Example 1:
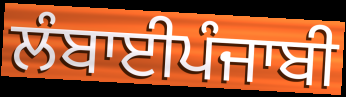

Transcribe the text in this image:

ਲੰਬਾਈਪੰਜਾਬੀ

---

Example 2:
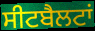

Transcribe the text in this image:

ਸੀਟਬੈਲਟਾਂ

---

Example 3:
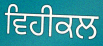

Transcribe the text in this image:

ਵਿਹੀਕਲ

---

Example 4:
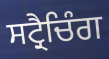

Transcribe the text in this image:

ਸਟ੍ਰੈਚਿੰਗ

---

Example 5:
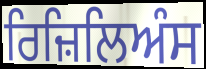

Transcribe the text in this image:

ਰਿਜ਼ਿਲਿਅੰਸ